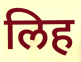
लिह